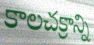
కాలచక్రాన్ని